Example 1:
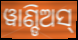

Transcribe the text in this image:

ୱାଣ୍ଡିଅସ୍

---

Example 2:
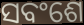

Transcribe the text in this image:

ସବଂଶେ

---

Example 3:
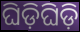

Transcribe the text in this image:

ଘିଡ଼ିଘିଡ଼ି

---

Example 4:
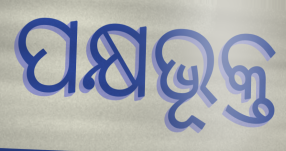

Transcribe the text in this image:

ପକ୍ଷଭୂକ୍ତ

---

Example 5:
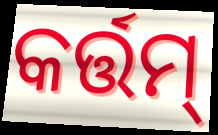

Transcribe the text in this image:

କର୍ତ୍ତମ୍